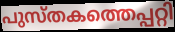
പുസ്തകത്തെപ്പറ്റി